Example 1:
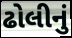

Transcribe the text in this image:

ઢોલીનું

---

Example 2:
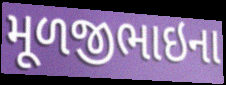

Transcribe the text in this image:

મૂળજીભાઇના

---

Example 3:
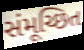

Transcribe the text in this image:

સંમૂચ્છિત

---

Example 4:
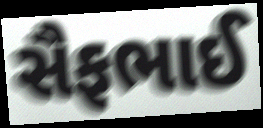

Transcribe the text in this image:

સૈફભાઈ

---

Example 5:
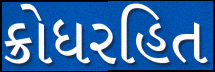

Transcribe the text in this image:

ક્રોધરહિત